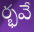
ర్భవే